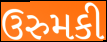
ઉરુમકી